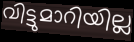
വിട്ടുമാറിയില്ല